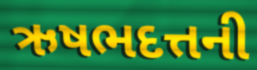
ઋષભદત્તની